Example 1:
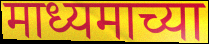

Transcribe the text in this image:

माध्यमाच्या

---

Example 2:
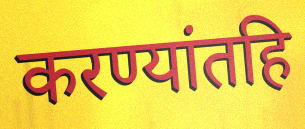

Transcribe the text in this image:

करण्यांतहि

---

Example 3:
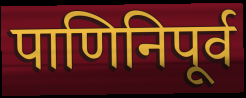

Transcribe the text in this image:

पाणिनिपूर्व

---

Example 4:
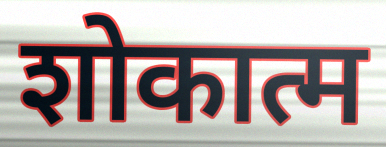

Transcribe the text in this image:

शोकात्म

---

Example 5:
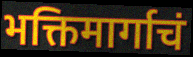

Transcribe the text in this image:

भक्तिमार्गाचं